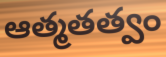
ఆత్మతత్వం